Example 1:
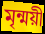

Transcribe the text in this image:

মৃন্ময়ী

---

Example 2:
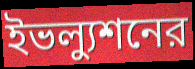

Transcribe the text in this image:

ইভল্যুশনের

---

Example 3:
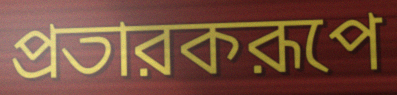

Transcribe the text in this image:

প্রতারকরূপে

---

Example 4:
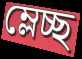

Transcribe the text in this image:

ম্লেচ্ছ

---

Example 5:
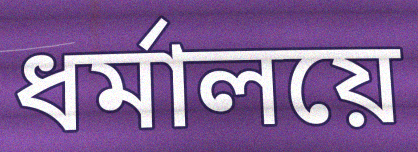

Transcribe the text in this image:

ধর্মালয়ে